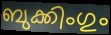
ബുക്കിംഗും